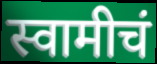
स्वामीचं